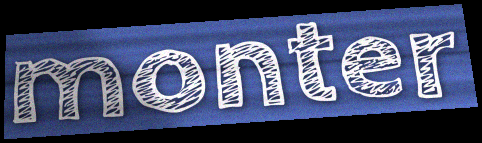
monter